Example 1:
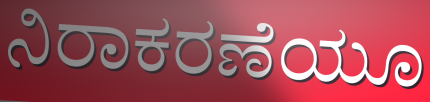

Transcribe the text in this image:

ನಿರಾಕರಣೆಯೂ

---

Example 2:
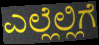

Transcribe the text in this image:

ಎಲ್ಲೆಲ್ಲಿಗೆ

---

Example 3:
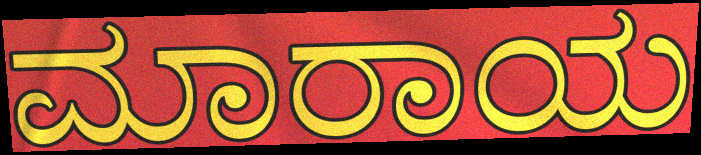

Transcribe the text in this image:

ಮಾರಾಯ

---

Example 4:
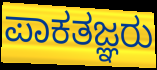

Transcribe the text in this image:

ಪಾಕತಜ್ಞರು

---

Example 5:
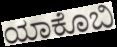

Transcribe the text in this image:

ಯಾಕೊಬಿ